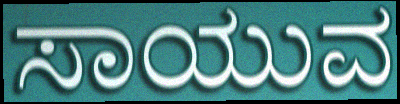
ಸಾಯುವ